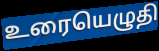
உரையெழுதி